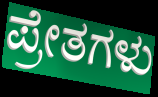
ಪ್ರೇತಗಳು